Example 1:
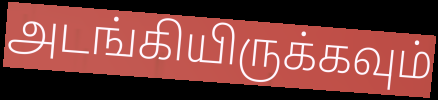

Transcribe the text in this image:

அடங்கியிருக்கவும்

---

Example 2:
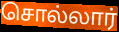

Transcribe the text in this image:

சொல்லார்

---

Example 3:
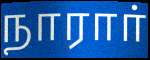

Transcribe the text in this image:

நாரார்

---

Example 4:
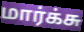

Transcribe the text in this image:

மார்க்சு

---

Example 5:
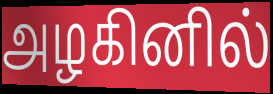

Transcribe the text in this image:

அழகினில்